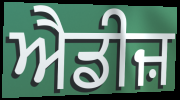
ਐਡੀਜ਼